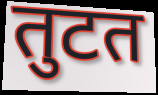
तुटत